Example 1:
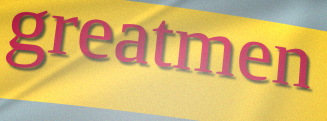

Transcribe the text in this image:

greatmen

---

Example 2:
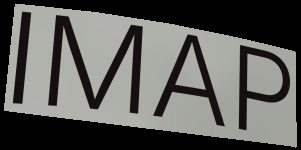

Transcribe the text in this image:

IMAP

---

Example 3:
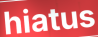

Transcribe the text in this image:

hiatus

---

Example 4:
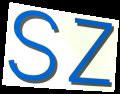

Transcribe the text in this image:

sz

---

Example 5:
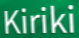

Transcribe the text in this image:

Kiriki